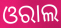
ଓରାଲ